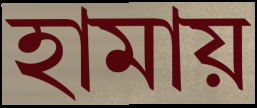
হামায়